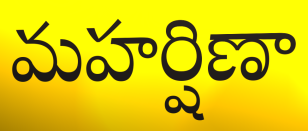
మహర్షిణా